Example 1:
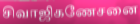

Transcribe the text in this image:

சிவாஜிகணேசனை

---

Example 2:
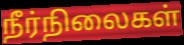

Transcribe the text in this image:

நீர்நிலைகள்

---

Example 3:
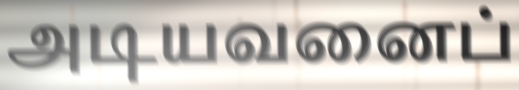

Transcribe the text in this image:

அடியவனைப்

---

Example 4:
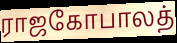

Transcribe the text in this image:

ராஜகோபாலத்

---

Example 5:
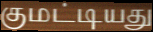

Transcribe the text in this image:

குமட்டியது